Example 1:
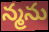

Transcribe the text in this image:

న్మను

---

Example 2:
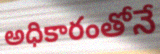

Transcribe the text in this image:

అధికారంతోనే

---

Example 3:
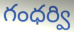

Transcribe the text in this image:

గంధర్వి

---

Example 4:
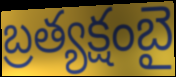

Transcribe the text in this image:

బ్రత్యక్షంబై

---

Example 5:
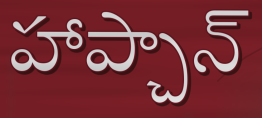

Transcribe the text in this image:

హాప్చాన్